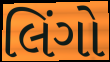
લિંગો